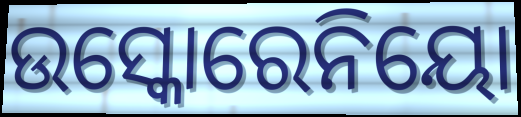
ଉସ୍କୋରେନିୟୋ